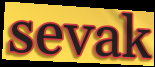
sevak